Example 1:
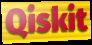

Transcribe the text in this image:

Qiskit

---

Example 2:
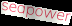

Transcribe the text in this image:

seapower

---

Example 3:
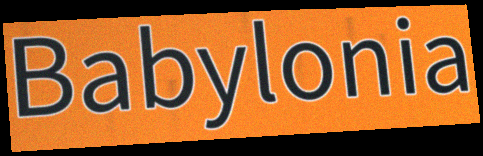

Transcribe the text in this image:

Babylonia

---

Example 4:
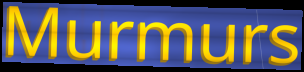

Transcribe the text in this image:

Murmurs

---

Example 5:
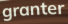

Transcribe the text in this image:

granter